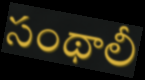
సంథాలీ